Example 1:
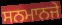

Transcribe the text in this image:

ਸਨਮਾਨਜੇ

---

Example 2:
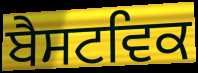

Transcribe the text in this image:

ਬੈਸਟਵਿਕ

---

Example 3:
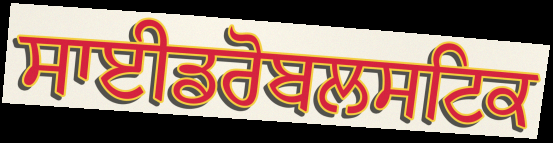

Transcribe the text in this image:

ਸਾਈਡਰੋਬਲਸਟਿਕ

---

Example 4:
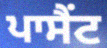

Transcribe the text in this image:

ਪਾਸੈਂਟ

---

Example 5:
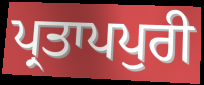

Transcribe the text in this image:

ਪ੍ਰਤਾਪਪੁਰੀ